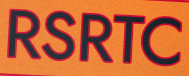
RSRTC